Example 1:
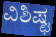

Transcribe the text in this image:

ವಿಶಿಷ್ಟ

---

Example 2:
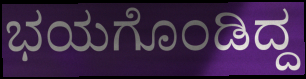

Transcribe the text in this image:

ಭಯಗೊಂಡಿದ್ದ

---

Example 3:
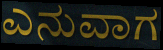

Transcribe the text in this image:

ಎನುವಾಗ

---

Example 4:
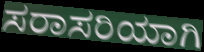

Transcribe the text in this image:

ಸರಾಸರಿಯಾಗಿ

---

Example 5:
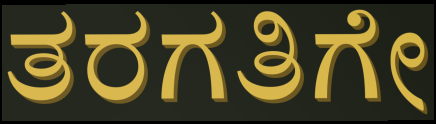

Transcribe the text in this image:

ತರಗತಿಗೇ